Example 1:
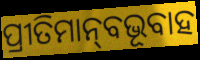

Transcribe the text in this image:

ପ୍ରୀତିମାନ୍‌ବଭୂବାହ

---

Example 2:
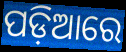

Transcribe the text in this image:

ପଡ଼ିଆରେ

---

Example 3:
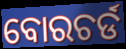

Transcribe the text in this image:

ବୋରଚର୍ଡ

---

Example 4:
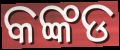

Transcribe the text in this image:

କଙ୍କଡ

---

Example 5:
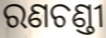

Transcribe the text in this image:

ରଣଚଣ୍ଡୀ